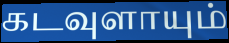
கடவுளாயும்